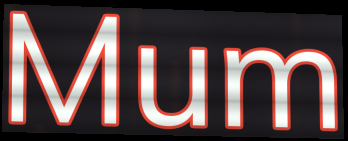
Mum